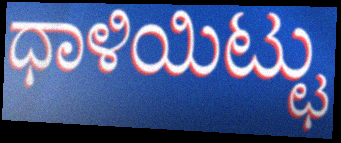
ಧಾಳಿಯಿಟ್ಟು